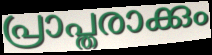
പ്രാപ്തരാക്കും